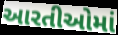
આરતીઓમાં